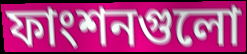
ফাংশনগুলো